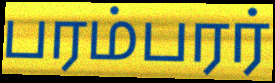
பரம்பரர்